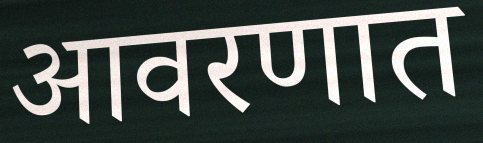
आवरणात